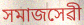
সমাজসেৱী